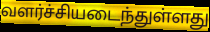
வளர்ச்சியடைந்துள்ளது